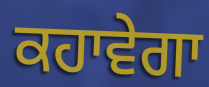
ਕਹਾਵੇਗਾ